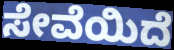
ಸೇವೆಯಿದೆ